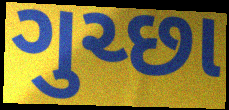
ગુચ્છા